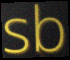
sb